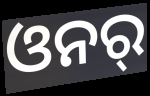
ଓନର୍